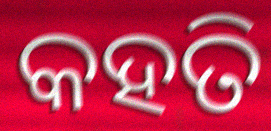
କହତି